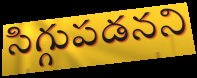
సిగ్గుపడనని